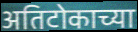
अतिटोकाच्या